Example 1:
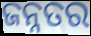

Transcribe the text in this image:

ଜନ୍ନତର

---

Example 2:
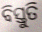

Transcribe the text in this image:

ବିସ୍ତୁତି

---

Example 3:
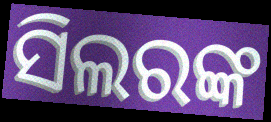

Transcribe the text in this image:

ସିଲରଙ୍କ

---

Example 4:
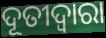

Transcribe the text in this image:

ଦୂତୀଦ୍ୱାରା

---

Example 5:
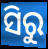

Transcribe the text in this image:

ସିରୁ